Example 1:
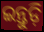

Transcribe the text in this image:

ଇନ୍ତୁଡ଼ି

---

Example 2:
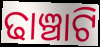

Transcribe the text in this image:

ଢାଞ୍ଚାଟି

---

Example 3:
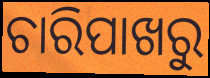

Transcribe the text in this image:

ଚାରିପାଖରୁ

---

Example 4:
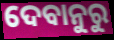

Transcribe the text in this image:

ଦେବାନୁରୁ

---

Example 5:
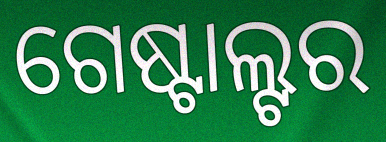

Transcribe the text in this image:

ଗେଷ୍ଟାଲ୍ଟର